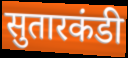
सुतारकंडी